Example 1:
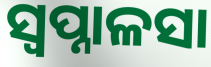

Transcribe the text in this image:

ସ୍ୱପ୍ନାଳସା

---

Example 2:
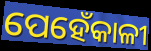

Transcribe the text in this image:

ପେହେଁକାଳୀ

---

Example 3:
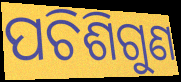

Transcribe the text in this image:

ପଚିଶିଗୁଣ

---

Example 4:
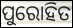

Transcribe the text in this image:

ପୁରୋହିତ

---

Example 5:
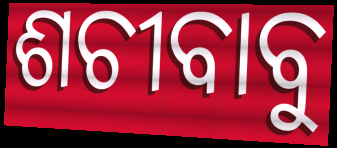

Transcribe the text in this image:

ଶଚୀବାବୁ